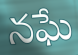
నఘే